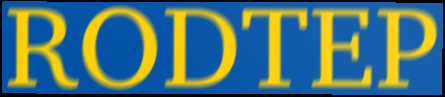
RODTEP